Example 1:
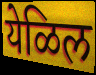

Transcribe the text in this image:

येळिल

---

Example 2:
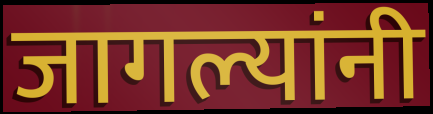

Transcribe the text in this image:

जागल्यांनी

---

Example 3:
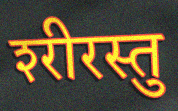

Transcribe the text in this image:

श्रीरस्तु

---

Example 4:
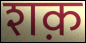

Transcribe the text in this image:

शक़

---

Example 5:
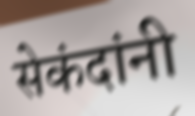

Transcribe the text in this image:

सेकंदांनी